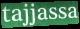
tajjassa